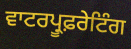
ਵਾਟਰਪ੍ਰੂਫ਼ਰੇਟਿੰਗ